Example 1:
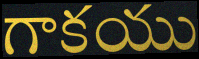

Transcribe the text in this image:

గాకయు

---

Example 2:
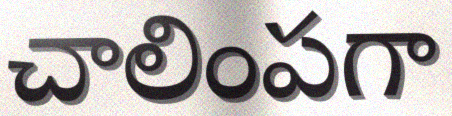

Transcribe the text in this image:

చాలింపగా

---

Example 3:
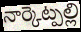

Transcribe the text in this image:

నార్కెట్పల్లి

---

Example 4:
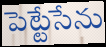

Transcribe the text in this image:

పెట్టేసేను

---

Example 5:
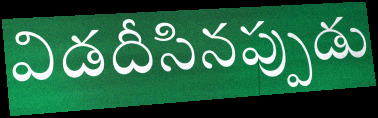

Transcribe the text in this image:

విడదీసినప్పుడు